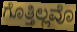
ಗೊತ್ತಿಲ್ಲವೊ